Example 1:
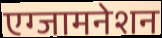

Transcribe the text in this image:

एग्जामनेशन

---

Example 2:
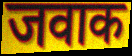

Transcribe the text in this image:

जवाक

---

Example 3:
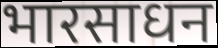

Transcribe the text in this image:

भारसाधन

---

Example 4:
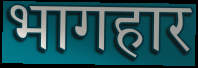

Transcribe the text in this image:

भागहार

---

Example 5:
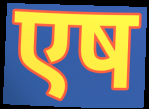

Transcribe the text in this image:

एष